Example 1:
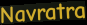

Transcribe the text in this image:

Navratra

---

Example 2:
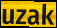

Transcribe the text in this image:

uzak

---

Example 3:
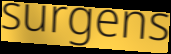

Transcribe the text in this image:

surgens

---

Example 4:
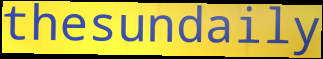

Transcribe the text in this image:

thesundaily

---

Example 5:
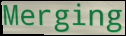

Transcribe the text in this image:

Merging